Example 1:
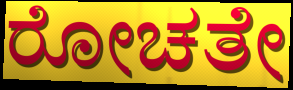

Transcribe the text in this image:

ರೋಚತೇ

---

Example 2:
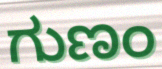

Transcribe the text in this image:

ಗುಣಂ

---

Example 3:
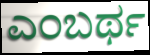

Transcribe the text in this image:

ಎಂಬರ್ಥ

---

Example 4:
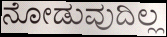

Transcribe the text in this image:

ನೋಡುವುದಿಲ್ಲ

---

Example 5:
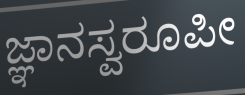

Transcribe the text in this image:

ಜ್ಞಾನಸ್ವರೂಪೀ